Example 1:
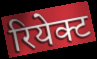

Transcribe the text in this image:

रियेक्ट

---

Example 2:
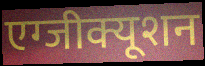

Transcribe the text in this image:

एग्जीक्यूशन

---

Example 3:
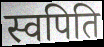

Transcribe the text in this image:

स्वपिति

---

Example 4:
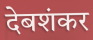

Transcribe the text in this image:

देबशंकर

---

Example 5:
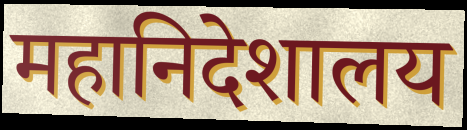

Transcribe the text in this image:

महानिदेशालय